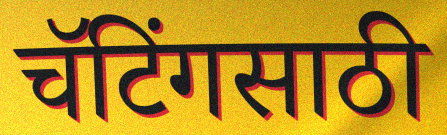
चॅटिंगसाठी